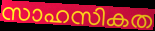
സാഹസികത